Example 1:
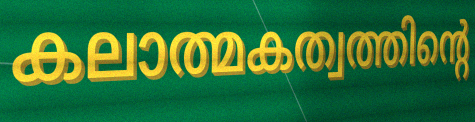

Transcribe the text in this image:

കലാത്മകത്വത്തിന്റെ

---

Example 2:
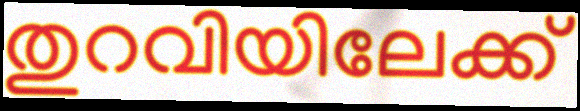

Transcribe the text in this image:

തുറവിയിലേക്ക്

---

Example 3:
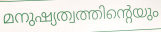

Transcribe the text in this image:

മനുഷ്യത്വത്തിന്റെയും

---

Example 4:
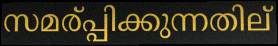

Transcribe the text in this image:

സമര്പ്പിക്കുന്നതില്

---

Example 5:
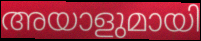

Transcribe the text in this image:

അയാളുമായി